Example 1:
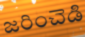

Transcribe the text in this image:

జరించెడి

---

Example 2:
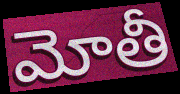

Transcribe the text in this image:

మోతీ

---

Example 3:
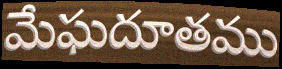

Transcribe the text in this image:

మేఘదూతము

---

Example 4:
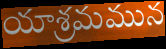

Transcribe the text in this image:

యాశ్రమమున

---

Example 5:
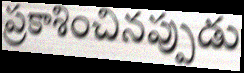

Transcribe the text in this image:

ప్రకాశించినప్పుడు